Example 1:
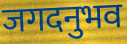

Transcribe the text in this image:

जगदनुभव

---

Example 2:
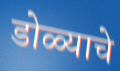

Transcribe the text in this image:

डोळ्याचे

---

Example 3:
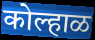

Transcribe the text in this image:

कोल्हाळ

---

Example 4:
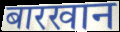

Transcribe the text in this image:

बारखान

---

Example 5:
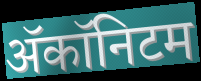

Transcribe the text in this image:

ॲकॉनिटम